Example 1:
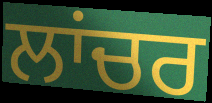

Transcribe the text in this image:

ਲਾਂਚਰ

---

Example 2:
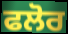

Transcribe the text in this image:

ਫਲੋਰ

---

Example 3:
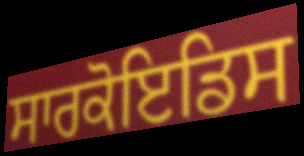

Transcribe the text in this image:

ਸਾਰਕੋਇਡਿਸ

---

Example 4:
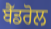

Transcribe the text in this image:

ਬੈੱਡਰੋਲ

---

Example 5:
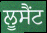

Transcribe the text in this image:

ਲੂਸੈਂਟ